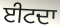
ਈਟਦਾ